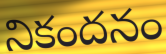
నికందనం